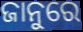
ଜାନୁରେ